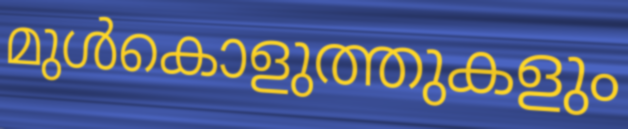
മുൾകൊളുത്തുകളും